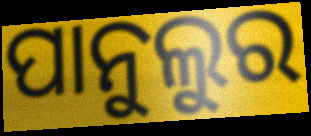
ପାନୁଲୁର